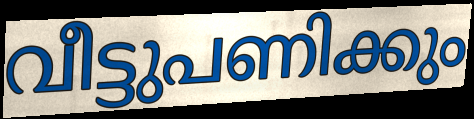
വീട്ടുപണിക്കും